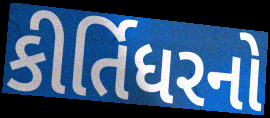
કીર્તિધરનો